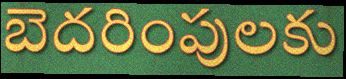
బెదరింపులకు